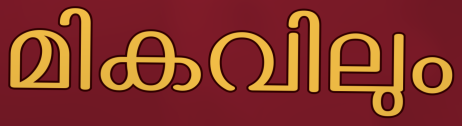
മികവിലും